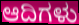
ಆದಿಗಳು